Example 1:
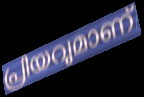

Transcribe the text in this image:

പ്രിയവുമാണ്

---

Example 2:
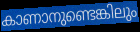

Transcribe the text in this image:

കാണാനുണ്ടെങ്കിലും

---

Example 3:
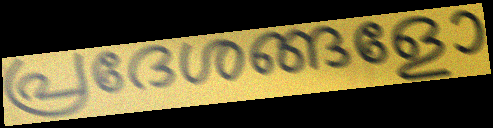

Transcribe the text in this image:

പ്രദേശങ്ങളോ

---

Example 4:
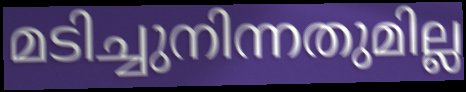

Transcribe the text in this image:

മടിച്ചുനിന്നതുമില്ല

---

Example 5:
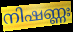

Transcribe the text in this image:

നിഷണ്ണഃ